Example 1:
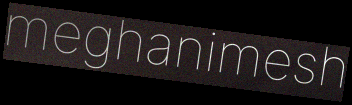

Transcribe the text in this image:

meghanimesh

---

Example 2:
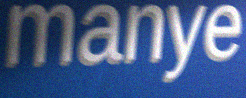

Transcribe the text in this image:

manye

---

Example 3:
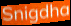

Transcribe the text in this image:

Snigdha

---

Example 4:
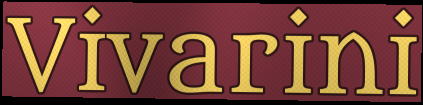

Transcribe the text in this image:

Vivarini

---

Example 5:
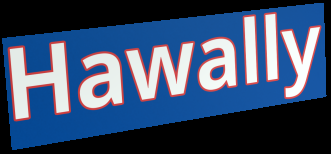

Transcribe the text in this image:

Hawally